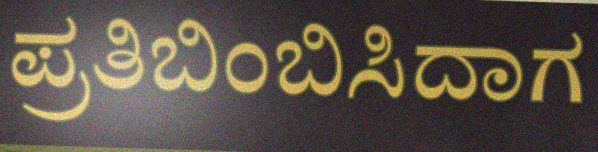
ಪ್ರತಿಬಿಂಬಿಸಿದಾಗ